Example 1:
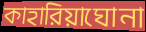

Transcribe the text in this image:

কাহারিয়াঘোনা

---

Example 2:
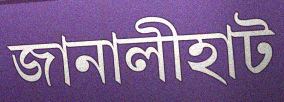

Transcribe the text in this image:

জানালীহাট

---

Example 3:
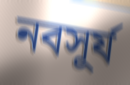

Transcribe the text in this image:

নবসূর্য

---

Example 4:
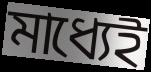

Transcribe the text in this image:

মাধ্যেই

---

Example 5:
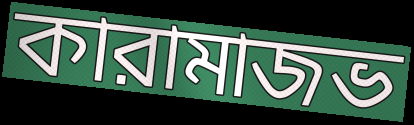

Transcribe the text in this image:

কারামাজভ